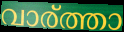
വാര്ത്താ